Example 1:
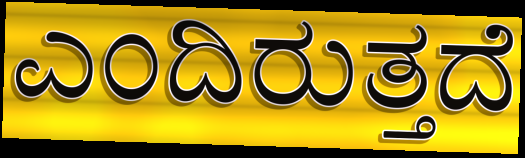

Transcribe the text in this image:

ಎಂದಿರುತ್ತದೆ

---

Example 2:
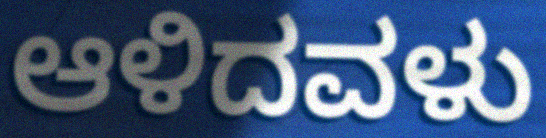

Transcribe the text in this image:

ಆಳಿದವಳು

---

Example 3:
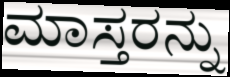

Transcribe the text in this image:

ಮಾಸ್ತರನ್ನು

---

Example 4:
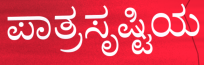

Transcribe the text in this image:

ಪಾತ್ರಸೃಷ್ಟಿಯ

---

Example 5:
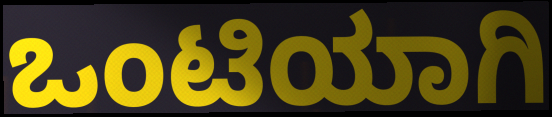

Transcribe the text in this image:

ಒಂಟಿಯಾಗಿ